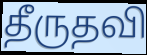
தீருதவி